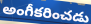
అంగీకరించడు